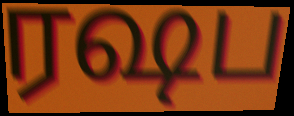
ரஷப